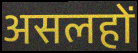
असलहों